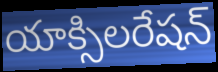
యాక్సిలరేషన్